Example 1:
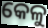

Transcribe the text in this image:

କେଳୁ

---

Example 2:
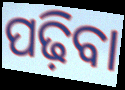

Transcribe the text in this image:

ପଢ଼ିବା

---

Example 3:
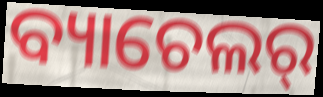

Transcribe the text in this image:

ବ୍ୟାଚେଲର୍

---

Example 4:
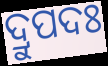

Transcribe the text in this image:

ଦ୍ରୁପଦଃ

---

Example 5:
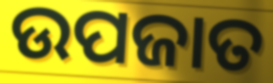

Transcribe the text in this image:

ଉପଜାତ